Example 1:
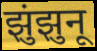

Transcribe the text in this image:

झुंझुनू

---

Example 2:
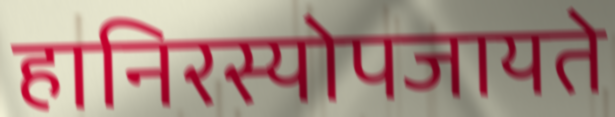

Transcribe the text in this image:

हानिरस्योपजायते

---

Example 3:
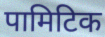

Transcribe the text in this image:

पामिटिक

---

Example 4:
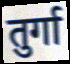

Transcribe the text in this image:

तुर्गा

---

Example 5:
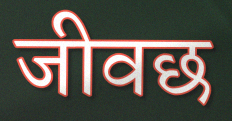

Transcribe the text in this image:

जीवछ